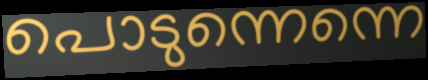
പൊടുന്നെന്നെ